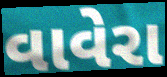
વાવેરા